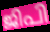
ജിപി